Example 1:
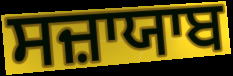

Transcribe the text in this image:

ਸਜ਼ਾਯਾਬ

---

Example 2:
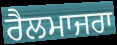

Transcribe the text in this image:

ਰੈਲਮਾਜਰਾ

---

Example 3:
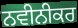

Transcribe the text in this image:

ਨਵੀਨੀਕਰ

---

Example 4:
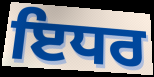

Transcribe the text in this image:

ਇਧਰ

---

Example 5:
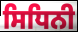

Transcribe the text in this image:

ਸਿਧਿਨੀ